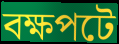
বক্ষপটে